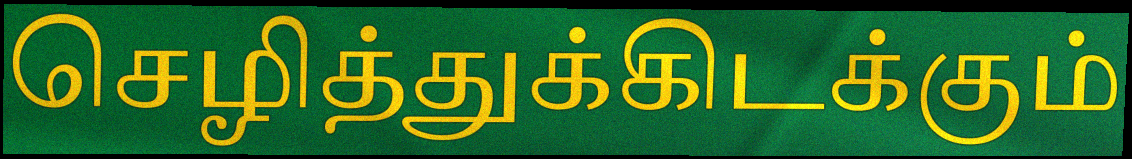
செழித்துக்கிடக்கும்